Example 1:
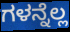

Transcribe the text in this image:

ಗಳನ್ನೆಲ್ಲ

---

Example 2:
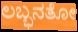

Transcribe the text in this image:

ಲಬ್ಭನತೋ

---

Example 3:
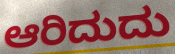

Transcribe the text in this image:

ಆರಿದುದು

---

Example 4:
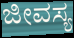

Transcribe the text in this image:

ಜೀವಸ್ಯ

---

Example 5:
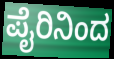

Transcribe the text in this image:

ಪೈರಿನಿಂದ